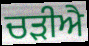
ਚੜੀਐ